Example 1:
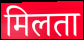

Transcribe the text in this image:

मिलता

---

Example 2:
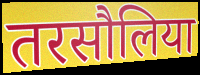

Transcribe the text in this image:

तरसौलिया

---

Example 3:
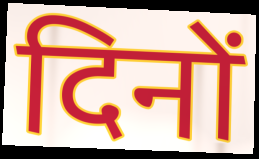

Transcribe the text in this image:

दिनों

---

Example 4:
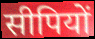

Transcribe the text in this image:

सीपियों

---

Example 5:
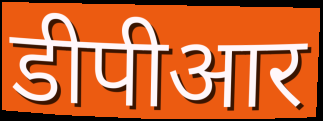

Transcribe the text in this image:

डीपीआर